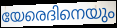
യേരെദിനെയും